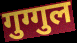
गुग्गुल